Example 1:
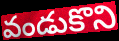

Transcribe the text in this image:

వండుకొని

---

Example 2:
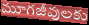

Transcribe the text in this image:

మూగజీవులకు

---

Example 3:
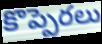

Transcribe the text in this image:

కొప్పెరలు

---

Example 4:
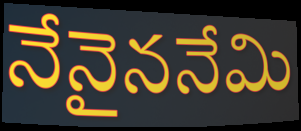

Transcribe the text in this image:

నేనైననేమి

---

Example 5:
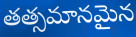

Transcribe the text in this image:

తత్సమానమైన